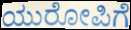
ಯುರೋಪಿಗೆ